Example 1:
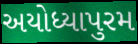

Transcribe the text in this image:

અયોધ્યાપુરમ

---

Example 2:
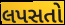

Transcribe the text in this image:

લપસતો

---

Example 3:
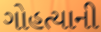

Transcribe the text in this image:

ગોહત્યાની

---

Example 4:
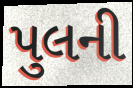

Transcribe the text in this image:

પુલની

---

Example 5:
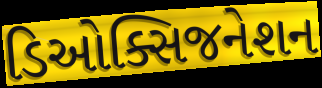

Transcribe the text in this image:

ડિઓક્સિજનેશન